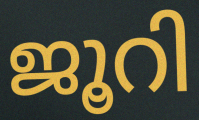
ജൂറി